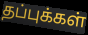
தப்புக்கள்